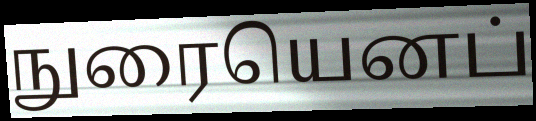
நுரையெனப்